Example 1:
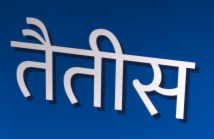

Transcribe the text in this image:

तैतीस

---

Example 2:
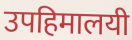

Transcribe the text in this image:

उपहिमालयी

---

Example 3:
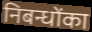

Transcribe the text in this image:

निबन्धोंका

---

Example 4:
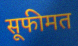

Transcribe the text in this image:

सूफीमत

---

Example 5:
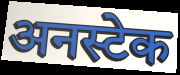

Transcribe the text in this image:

अनस्टेक